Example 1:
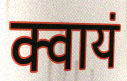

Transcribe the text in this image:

क्वायं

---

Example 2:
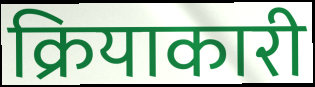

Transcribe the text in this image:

क्रियाकारी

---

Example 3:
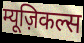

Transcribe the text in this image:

म्यूज़िकल्स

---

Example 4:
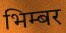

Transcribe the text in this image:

भिम्बर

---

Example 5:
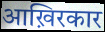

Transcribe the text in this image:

आख़िरकार